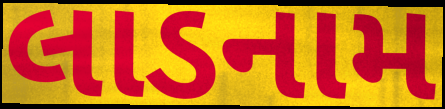
લાડનામ